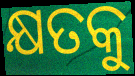
କ୍ଷତକୁ